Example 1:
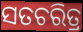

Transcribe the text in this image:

ସତଚରିତ୍ର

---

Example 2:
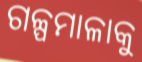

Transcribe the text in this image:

ଗଳ୍ପମାଳାକୁ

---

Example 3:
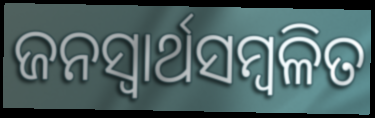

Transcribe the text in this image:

ଜନସ୍ବାର୍ଥସମ୍ବଳିତ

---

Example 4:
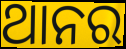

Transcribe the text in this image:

ଥାନର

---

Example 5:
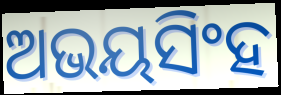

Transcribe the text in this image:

ଅଭୟସିଂହ